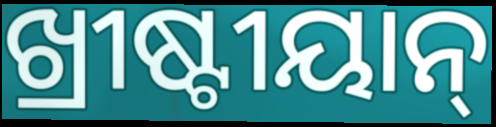
ଖ୍ରୀଷ୍ଟୀୟାନ୍